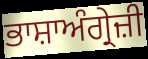
ਭਾਸ਼ਾਅੰਗ੍ਰੇਜ਼ੀ